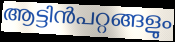
ആട്ടിൻപറ്റങ്ങളും